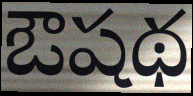
ఔషథ